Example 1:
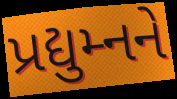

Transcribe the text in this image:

પ્રદ્યુમ્નને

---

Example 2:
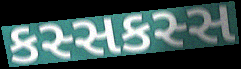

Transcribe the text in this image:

કસ્સકસ્સ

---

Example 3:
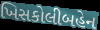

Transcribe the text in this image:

ખિસકોલીબહેન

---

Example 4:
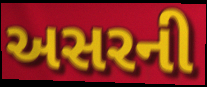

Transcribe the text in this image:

અસરની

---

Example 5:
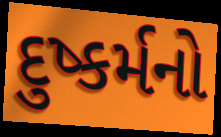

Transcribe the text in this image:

દુષ્કર્મનો